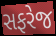
સફરેજ